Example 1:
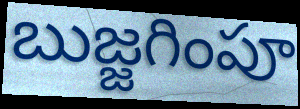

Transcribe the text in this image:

బుజ్జగింపూ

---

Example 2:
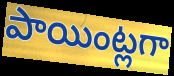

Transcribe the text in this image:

పాయింట్లగా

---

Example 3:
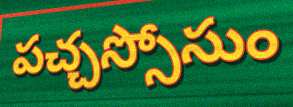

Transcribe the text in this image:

పచ్చస్సోసుం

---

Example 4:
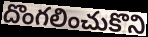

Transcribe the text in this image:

దొంగలించుకొని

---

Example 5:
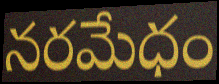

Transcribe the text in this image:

నరమేధం